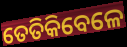
ତେତିକିବେଳେ